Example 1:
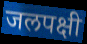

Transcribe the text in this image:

जलपक्षी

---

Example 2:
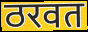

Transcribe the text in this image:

ठरवत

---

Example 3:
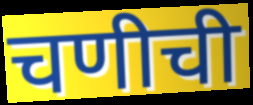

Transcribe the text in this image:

चणीची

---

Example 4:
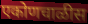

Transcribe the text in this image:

एकोणचाळीस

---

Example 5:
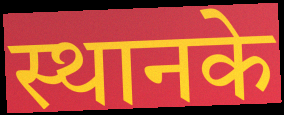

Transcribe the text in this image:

स्थानके